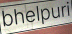
bhelpuri